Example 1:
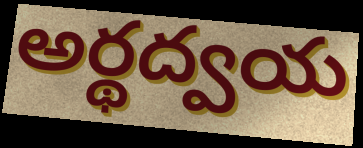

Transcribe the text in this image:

అర్థద్వయ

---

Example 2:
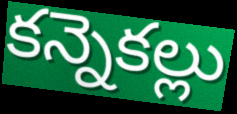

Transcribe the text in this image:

కన్నెకల్లు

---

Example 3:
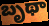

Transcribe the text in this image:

బృథా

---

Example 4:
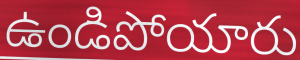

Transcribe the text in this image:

ఉండిపోయారు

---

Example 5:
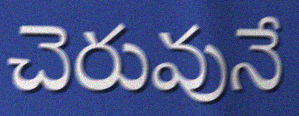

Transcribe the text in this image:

చెరువునే